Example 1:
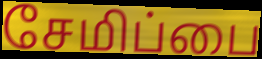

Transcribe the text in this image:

சேமிப்பை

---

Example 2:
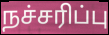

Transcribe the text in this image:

நச்சரிப்பு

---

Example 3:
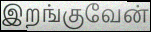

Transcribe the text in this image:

இறங்குவேன்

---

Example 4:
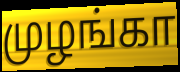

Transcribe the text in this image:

முழங்கா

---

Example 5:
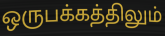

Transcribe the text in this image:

ஒருபக்கத்திலும்